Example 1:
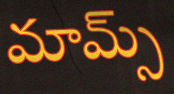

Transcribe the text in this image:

మామ్స్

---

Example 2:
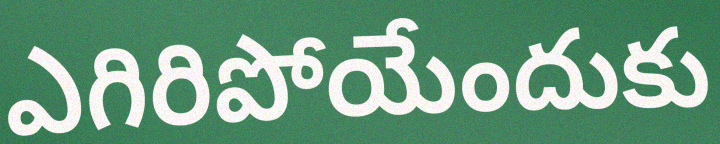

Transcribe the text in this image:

ఎగిరిపోయేందుకు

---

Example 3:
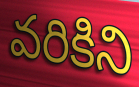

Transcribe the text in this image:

వరికిని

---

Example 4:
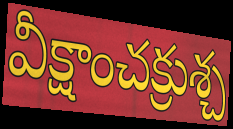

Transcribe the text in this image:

వీక్షాంచక్రుశ్చ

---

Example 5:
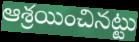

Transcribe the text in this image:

ఆశ్రయించినట్టు